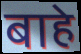
बाहे